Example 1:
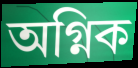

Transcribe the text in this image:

অগ্নিক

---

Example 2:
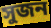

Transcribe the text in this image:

সুজন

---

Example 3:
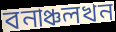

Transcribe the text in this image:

বনাঞ্চলখন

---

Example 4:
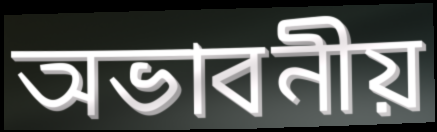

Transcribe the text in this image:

অভাবনীয়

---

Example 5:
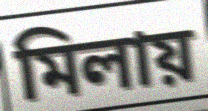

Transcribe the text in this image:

মিলায়